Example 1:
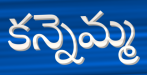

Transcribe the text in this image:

కన్నెమ్మ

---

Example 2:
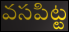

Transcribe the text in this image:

వసపిట్ట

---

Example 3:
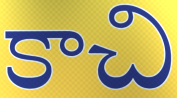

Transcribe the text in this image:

కాచి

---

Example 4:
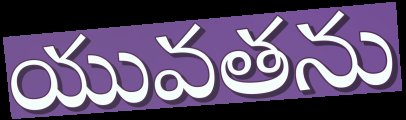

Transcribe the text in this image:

యువతను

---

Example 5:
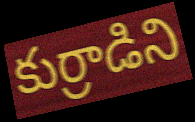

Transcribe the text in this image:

కుర్రాడిని